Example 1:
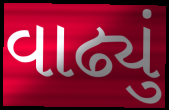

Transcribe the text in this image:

વાઢ્યું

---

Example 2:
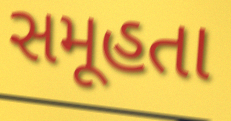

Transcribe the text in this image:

સમૂહતા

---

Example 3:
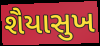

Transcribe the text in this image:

શૈયાસુખ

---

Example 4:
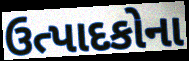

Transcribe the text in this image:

ઉત્પાદકોના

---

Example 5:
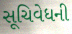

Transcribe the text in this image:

સૂચિવેધની